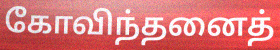
கோவிந்தனைத்